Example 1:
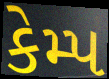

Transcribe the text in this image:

કેમ્પ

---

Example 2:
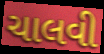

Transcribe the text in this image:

ચાલવી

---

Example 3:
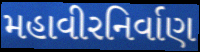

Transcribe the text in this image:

મહાવીરનિર્વાણ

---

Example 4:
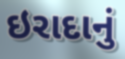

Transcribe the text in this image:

ઇરાદાનું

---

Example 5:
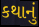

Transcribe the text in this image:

કથાનું